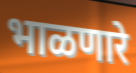
भाळणारे